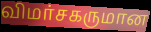
விமர்சகருமான